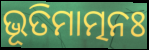
ଭୂତିମାତ୍ମନଃ